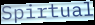
Spirtual